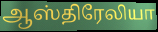
ஆஸ்திரேலியா